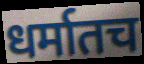
धर्मातच